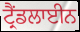
ਟ੍ਰੈਂਡਲਾਈਨ